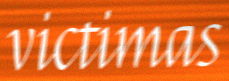
victimas